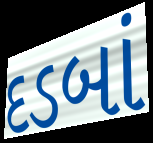
દડબાં